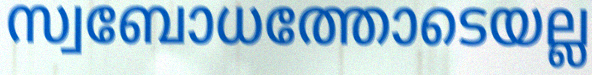
സ്വബോധത്തോടെയല്ല